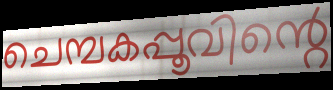
ചെമ്പകപ്പൂവിന്റെ